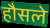
हौसले